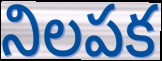
నిలపక